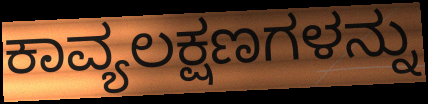
ಕಾವ್ಯಲಕ್ಷಣಗಳನ್ನು